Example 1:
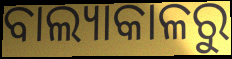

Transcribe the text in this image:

ବାଲ୍ୟାକାଳରୁ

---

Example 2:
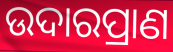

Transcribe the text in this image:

ଉଦାରପ୍ରାଣ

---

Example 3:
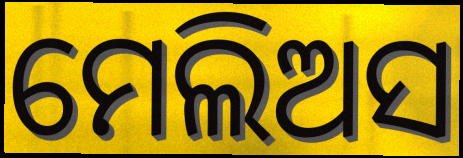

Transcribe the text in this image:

ମେଲିଅସ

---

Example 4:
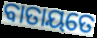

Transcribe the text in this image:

ବାତାୟତେ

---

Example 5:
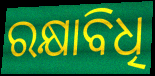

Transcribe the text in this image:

ରକ୍ଷାବିଧି